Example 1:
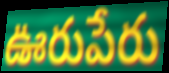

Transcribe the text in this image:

ఊరుపేరు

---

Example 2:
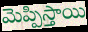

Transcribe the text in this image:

మెప్పిస్తాయి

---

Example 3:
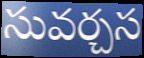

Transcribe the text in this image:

సువర్చస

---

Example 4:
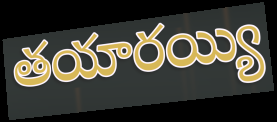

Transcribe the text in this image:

తయారయ్యి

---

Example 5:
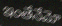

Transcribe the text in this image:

ఇంతేనేమో